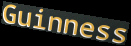
Guinness